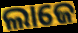
ଲାଜେ